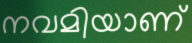
നവമിയാണ്